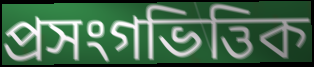
প্ৰসংগভিত্তিক